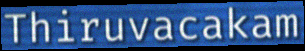
Thiruvacakam